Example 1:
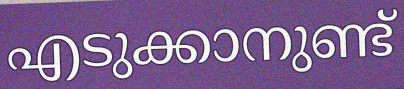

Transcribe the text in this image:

എടുക്കാനുണ്ട്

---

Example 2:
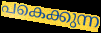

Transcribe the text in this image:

പകെക്കുന്ന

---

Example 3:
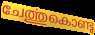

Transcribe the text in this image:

ചേൎത്തുകൊണ്ടു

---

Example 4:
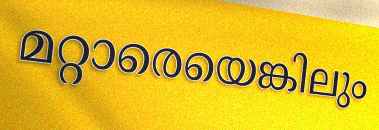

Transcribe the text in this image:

മറ്റാരെയെങ്കിലും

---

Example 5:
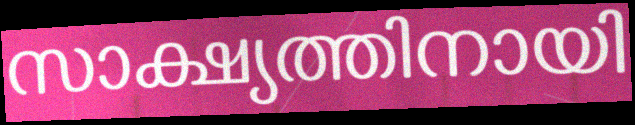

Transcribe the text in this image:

സാക്ഷ്യത്തിനായി